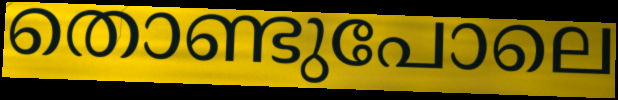
തൊണ്ടുപോലെ